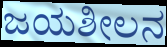
ಜಯಶೀಲನ